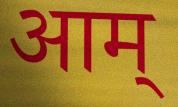
आम्